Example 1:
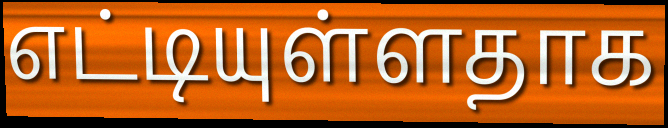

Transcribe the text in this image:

எட்டியுள்ளதாக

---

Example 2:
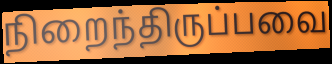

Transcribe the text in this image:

நிறைந்திருப்பவை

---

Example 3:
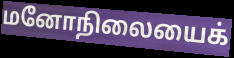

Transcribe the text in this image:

மனோநிலையைக்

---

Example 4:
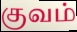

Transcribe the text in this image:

குவம்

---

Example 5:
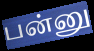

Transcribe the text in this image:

பன்னு